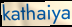
kathaiya